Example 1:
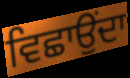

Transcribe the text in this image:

ਵਿਛਾਉਂਦਾ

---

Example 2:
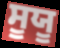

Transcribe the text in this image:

ਸੂਯੂ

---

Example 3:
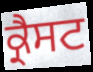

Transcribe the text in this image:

ਕ੍ਰੈਸਟ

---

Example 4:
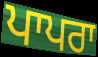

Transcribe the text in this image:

ਪਾਪਰਾ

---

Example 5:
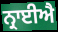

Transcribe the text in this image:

ਨ੍ਰਾਈਐ